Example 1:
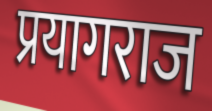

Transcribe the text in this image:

प्रयागराज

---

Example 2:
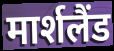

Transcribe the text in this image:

मार्शलैंड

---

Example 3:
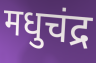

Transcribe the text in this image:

मधुचंद्र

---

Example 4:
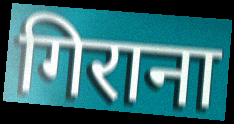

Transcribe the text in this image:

गिराना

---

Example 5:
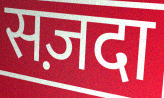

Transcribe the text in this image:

सज़दा